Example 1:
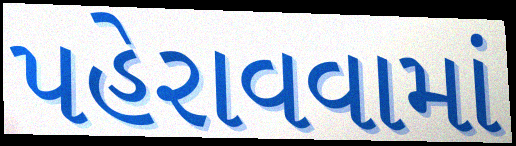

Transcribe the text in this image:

પહેરાવવામાં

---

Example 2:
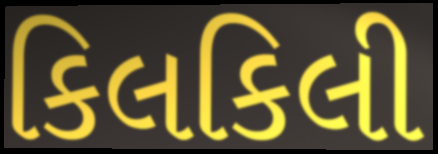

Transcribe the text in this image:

કિલકિલી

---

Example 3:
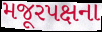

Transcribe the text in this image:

મજૂરપક્ષના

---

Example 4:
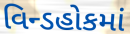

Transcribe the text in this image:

વિન્ડહોકમાં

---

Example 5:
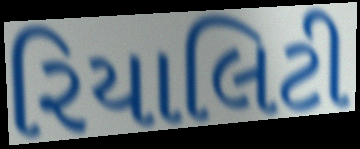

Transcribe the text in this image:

રિયાલિટી